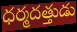
ధర్మదత్తుడు